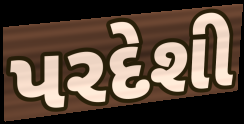
પરદેશી